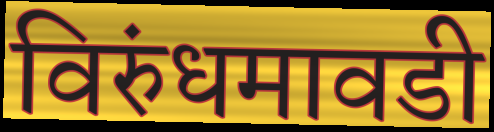
विरुंधमावडी